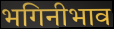
भगिनीभाव